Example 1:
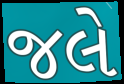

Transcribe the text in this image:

જલે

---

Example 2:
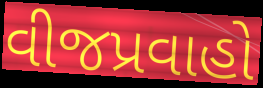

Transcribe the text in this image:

વીજપ્રવાહો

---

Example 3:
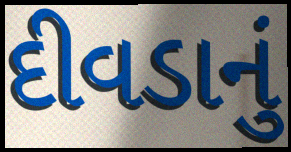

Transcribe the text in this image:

દીવડાનું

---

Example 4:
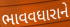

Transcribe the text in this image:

ભાવવધારાને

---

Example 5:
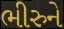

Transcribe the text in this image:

ભીરુને